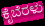
ಕೈಬೆರಳು